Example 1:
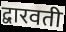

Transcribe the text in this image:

द्वारवती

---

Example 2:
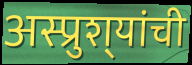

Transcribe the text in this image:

अस्प्रुश्यांची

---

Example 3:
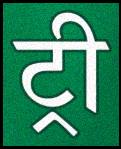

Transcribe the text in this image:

ट्री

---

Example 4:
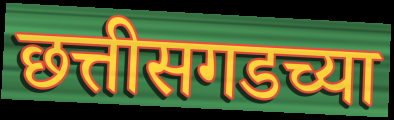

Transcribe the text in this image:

छत्तीसगडच्या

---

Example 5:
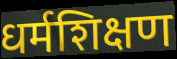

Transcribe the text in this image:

धर्मशिक्षण